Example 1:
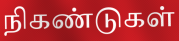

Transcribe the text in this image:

நிகண்டுகள்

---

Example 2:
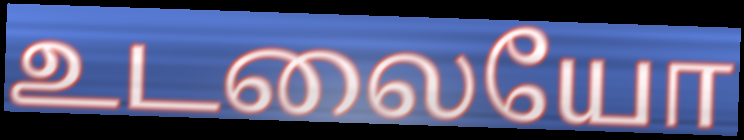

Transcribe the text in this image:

உடலையோ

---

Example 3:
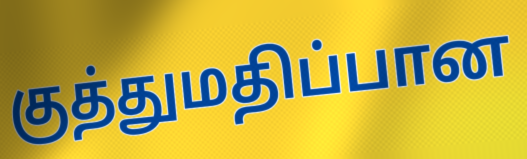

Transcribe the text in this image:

குத்துமதிப்பான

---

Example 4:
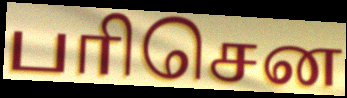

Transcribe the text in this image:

பரிசென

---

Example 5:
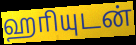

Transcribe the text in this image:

ஹரியுடன்